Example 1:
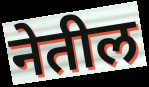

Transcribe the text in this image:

नेतील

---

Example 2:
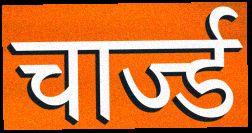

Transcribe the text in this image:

चार्ज्ड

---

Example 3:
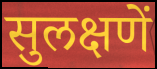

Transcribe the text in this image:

सुलक्षणें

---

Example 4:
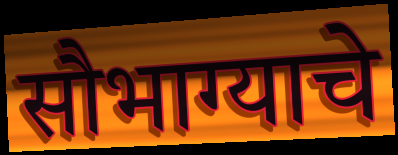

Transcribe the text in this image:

सौभाग्याचे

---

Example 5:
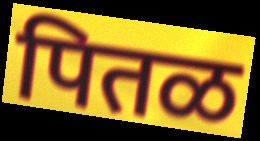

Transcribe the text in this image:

पितळ